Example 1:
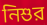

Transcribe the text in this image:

নিশুর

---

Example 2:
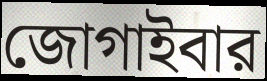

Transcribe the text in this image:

জোগাইবার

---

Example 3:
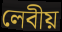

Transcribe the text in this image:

লেবীয়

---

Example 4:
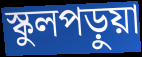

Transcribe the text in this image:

স্কুলপড়ুয়া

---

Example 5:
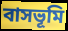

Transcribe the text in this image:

বাসভূমি